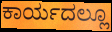
ಕಾರ್ಯದಲ್ಲೂ